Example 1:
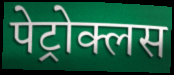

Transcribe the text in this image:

पेट्रोक्लस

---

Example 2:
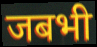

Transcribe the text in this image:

जबभी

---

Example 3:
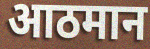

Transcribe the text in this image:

आठमान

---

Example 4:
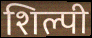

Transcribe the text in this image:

शिल्‍पी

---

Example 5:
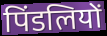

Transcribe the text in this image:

पिंडलियों